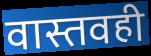
वास्तवही